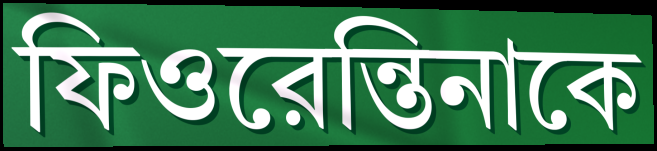
ফিওরেন্তিনাকে